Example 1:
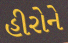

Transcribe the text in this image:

હીરોને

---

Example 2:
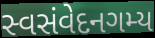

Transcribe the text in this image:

સ્વસંવેદનગમ્ય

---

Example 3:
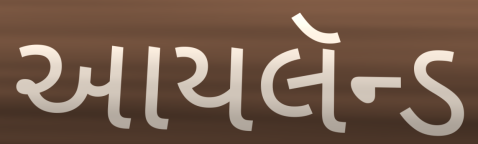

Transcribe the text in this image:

આયલૅન્ડ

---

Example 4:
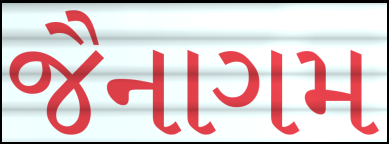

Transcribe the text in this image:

જૈનાગમ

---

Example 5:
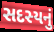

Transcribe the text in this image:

સદસ્યનું